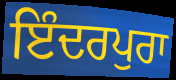
ਇੰਦਰਪੁਰਾ